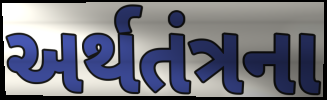
અર્થતંત્રના